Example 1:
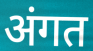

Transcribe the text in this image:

अंगत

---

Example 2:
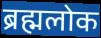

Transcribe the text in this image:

ब्रह्मलोक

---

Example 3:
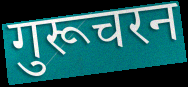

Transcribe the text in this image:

गुरूचरन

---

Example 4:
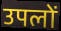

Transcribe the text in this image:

उपलों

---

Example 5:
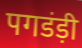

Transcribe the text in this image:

पगडंड़ी